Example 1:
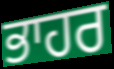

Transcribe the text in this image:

ਭਾਹਰ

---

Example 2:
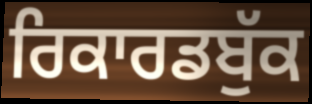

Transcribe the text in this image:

ਰਿਕਾਰਡਬੁੱਕ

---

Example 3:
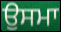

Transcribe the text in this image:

ਉਸਮਾ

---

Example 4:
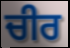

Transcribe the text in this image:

ਚੀਰ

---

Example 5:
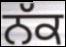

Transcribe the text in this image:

ਨੱਕ